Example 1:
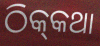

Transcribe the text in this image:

ଠିକ୍‌କଥା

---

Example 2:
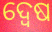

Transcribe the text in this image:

ଦ୍ବେଷ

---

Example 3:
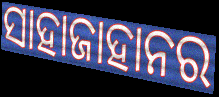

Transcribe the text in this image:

ସାହାଜାହାନର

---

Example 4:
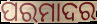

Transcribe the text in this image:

ପରମାଦର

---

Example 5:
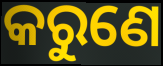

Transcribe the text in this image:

କରୁଣେ